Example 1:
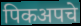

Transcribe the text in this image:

पिकअपचे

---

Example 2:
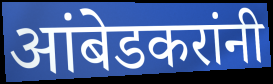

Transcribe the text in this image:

आंबेडकरांनी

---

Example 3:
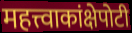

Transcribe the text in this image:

महत्त्वाकांक्षेपोटी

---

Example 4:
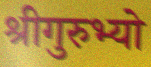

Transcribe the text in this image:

श्रीगुरुभ्यो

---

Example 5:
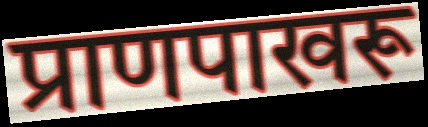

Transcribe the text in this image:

प्राणपाखरू